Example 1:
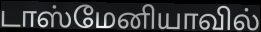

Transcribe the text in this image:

டாஸ்மேனியாவில்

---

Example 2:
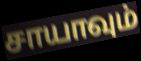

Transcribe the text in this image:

சாயாவும்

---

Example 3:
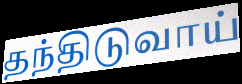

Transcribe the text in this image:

தந்திடுவாய்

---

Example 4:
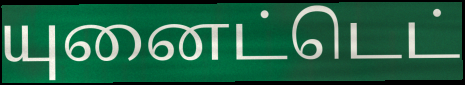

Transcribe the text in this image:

யுனைட்டெட்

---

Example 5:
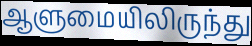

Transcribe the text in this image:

ஆளுமையிலிருந்து